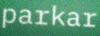
parkar